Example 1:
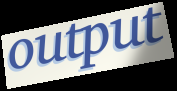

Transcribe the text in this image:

output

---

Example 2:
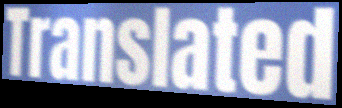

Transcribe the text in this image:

Translated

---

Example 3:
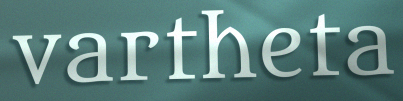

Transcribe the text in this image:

vartheta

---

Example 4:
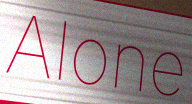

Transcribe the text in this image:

Alone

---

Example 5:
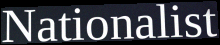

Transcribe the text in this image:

Nationalist